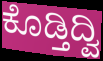
ಕೊಡ್ತಿದ್ವಿ